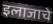
इलाजाचे